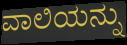
ವಾಲಿಯನ್ನು